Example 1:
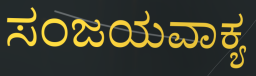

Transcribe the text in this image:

ಸಂಜಯವಾಕ್ಯ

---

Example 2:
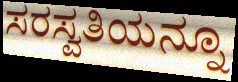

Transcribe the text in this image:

ಸರಸ್ವತಿಯನ್ನೂ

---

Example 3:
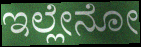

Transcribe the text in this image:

ಇಲ್ಲೇನೋ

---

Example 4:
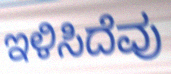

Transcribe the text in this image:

ಇಳಿಸಿದೆವು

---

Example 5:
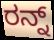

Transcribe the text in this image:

ರನ್ನ್